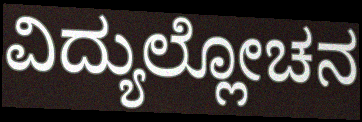
ವಿದ್ಯುಲ್ಲೋಚನ